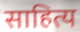
साहित्‍य